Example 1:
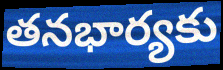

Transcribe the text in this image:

తనభార్యకు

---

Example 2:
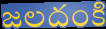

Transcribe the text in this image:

జలదంకి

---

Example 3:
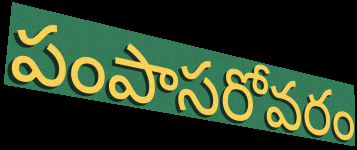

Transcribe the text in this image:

పంపాసరోవరం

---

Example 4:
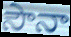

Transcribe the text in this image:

సౌనా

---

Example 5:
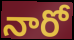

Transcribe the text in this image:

నారో